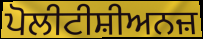
ਪੋਲੀਟੀਸ਼ੀਅਨਜ਼